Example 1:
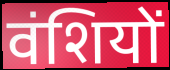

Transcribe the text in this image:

वंशियों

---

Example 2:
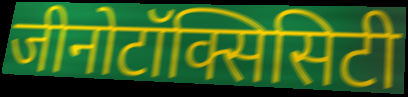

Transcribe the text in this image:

जीनोटॉक्सिसिटी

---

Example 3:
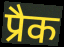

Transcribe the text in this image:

प्रैक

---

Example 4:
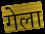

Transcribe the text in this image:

गेला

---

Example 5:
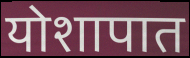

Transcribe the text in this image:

योशापात